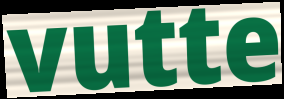
vutte